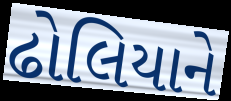
ઢોલિયાને